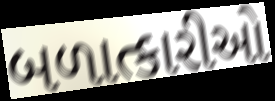
બળાત્કારીઓ